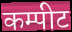
कम्पीट